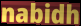
nabidh